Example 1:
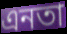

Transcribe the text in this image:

এনতা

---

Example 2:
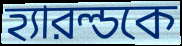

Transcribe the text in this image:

হ্যারল্ডকে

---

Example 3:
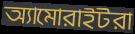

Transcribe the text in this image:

অ্যামোরাইটরা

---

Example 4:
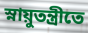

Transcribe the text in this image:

স্নায়ুতন্ত্রীতে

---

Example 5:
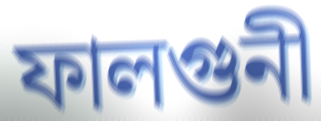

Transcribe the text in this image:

ফালগুনী